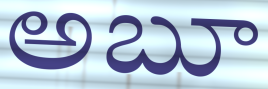
అబూ